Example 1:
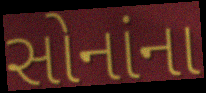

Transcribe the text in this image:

સોનાંના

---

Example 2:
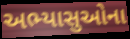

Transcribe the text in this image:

અભ્યાસુઓના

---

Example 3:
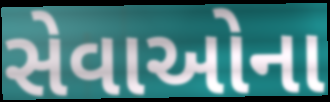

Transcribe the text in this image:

સેવાઓના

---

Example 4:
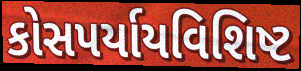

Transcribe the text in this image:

કોસપર્યાયવિશિષ્ટ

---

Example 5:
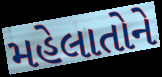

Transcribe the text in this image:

મહેલાતોને